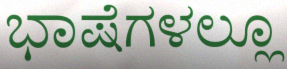
ಭಾಷೆಗಳಲ್ಲೂ